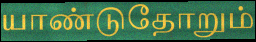
யாண்டுதோறும்